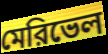
মেরিভেল